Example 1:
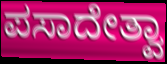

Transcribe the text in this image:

ಪಸಾದೇತ್ವಾ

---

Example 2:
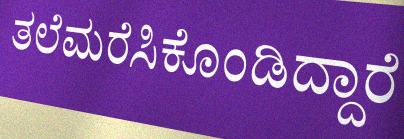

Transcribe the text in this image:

ತಲೆಮರೆಸಿಕೊಂಡಿದ್ದಾರೆ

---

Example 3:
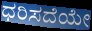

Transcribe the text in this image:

ಧರಿಸದೆಯೇ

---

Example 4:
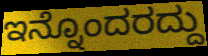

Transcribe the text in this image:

ಇನ್ನೊಂದರದ್ದು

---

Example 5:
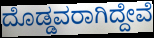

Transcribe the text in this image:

ದೊಡ್ಡವರಾಗಿದ್ದೇವೆ